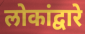
लोकांद्वारे